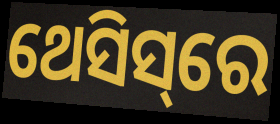
ଥେସିସ୍‌ରେ